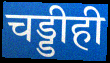
चड्डीही